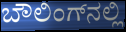
ಬೌಲಿಂಗ್‌ನಲ್ಲಿ